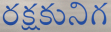
రక్షకునిగ